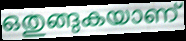
ഒതുങ്ങുകയാണ്